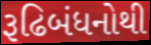
રૂઢિબંધનોથી